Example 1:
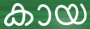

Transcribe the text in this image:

കായ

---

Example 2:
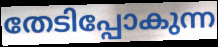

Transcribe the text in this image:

തേടിപ്പോകുന്ന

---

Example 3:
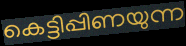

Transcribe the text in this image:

കെട്ടിപ്പിണയുന്ന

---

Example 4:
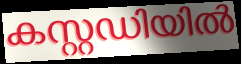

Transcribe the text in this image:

കസ്റ്റഡിയിൽ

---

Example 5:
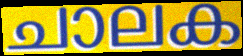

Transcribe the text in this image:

ചാലക